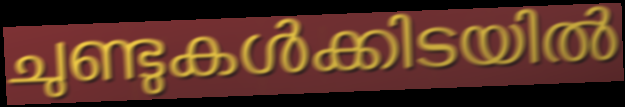
ചുണ്ടുകൾക്കിടയിൽ